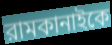
রামকানাইকে